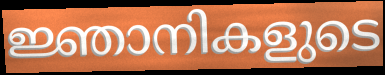
ജ്ഞാനികളുടെ